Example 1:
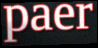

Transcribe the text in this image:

paer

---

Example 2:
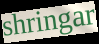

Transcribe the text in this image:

shringar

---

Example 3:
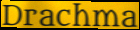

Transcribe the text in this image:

Drachma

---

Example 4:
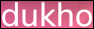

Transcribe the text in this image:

dukho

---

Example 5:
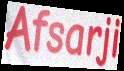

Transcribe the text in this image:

Afsarji